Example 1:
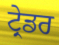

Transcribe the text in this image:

ਟ੍ਰੇਡਰ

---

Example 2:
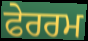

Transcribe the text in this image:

ਫੇਰਰਮ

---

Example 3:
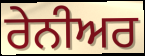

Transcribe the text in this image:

ਰੇਨੀਅਰ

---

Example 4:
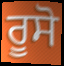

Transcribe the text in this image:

ਰੂਸੋ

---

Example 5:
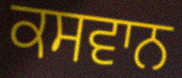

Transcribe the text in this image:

ਕਸਵਾਨ